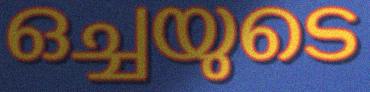
ഒച്ചയുടെ